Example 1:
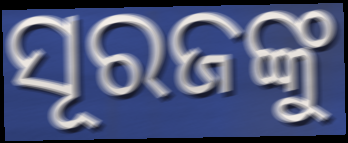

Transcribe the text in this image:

ସୂରଜଙ୍କୁ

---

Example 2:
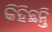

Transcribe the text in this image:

କିହିଛନ୍ତି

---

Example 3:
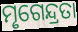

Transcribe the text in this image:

ମୃଗେନ୍ଦ୍ରତା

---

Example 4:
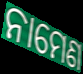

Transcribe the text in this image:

ନାମେଣ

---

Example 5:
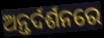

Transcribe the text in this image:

ଅନ୍ତର୍ଦର୍ଶନରେ